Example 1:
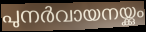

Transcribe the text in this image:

പുനർവായനയ്ക്കും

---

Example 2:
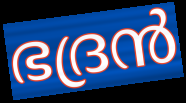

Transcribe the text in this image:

ഭദ്രൻ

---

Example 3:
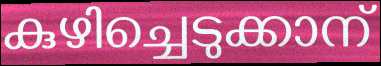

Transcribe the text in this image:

കുഴിച്ചെടുക്കാന്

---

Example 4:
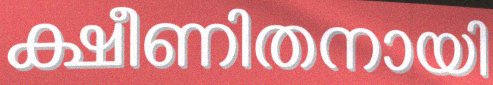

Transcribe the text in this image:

ക്ഷീണിതനായി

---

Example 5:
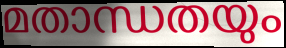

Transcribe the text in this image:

മതാന്ധതയും